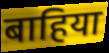
बाहिया